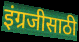
इंग्रजीसाठी